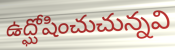
ఉద్ఘోషించుచున్నవి